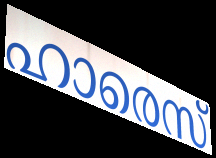
ഹാരെസ്